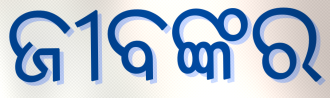
ଜୀବଙ୍କର